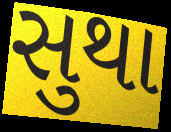
સુથા